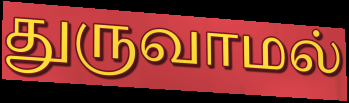
துருவாமல்